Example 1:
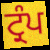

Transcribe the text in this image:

ਟ੍ਰੰਪ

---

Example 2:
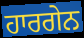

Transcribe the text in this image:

ਹਾਰਗੇਨ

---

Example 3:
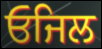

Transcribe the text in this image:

ਓਜਿਲ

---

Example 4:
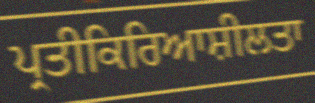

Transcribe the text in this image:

ਪ੍ਰਤੀਕਿਰਿਆਸ਼ੀਲਤਾ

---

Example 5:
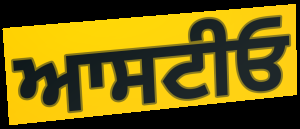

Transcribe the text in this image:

ਆਸਟੀਓ